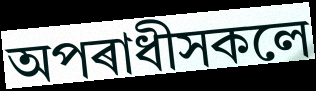
অপৰাধীসকলে